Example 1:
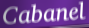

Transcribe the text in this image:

Cabanel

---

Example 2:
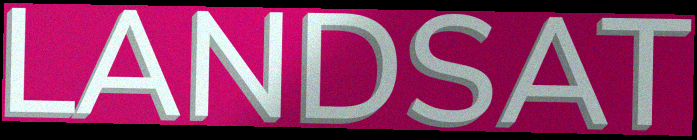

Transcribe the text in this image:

LANDSAT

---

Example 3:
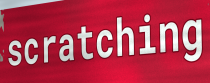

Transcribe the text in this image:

scratching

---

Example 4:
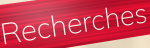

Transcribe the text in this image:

Recherches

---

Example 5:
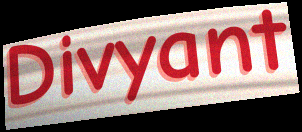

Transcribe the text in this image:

Divyant